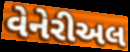
વેનેરીઅલ